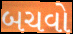
બચવો